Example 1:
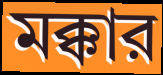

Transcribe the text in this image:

মক্কার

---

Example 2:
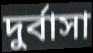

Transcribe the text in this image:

দুর্বাসা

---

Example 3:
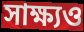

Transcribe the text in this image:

সাক্ষ্যও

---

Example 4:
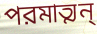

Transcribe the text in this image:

পরমাত্মন্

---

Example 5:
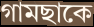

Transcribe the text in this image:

গামছাকে